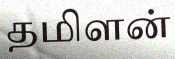
தமிளன்